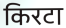
किरटा